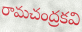
రామచంద్రకవి